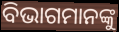
ବିଭାଗମାନଙ୍କୁ